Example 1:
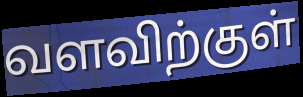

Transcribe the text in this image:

வளவிற்குள்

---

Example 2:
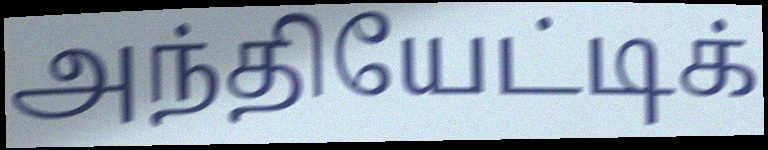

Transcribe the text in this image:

அந்தியேட்டிக்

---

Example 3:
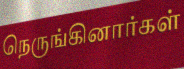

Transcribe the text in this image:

நெருங்கினார்கள்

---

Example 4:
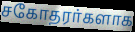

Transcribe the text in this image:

சகோதரர்களாக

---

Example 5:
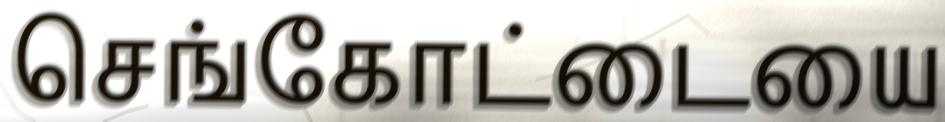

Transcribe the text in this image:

செங்கோட்டையை